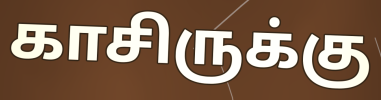
காசிருக்கு